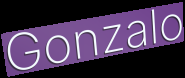
Gonzalo